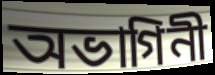
অভাগিনী